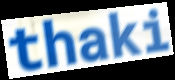
thaki